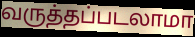
வருத்தப்படலாமா